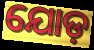
ଯୋଡ଼